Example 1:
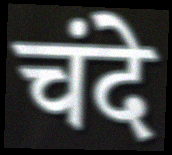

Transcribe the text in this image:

चंदे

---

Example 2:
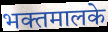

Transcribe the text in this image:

भक्तमालके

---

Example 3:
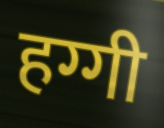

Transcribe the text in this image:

हग्गी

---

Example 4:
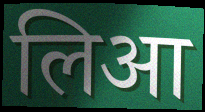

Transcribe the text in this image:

लिआ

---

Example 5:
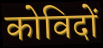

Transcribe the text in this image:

कोविदों